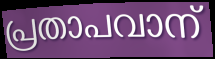
പ്രതാപവാന്